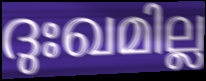
ദുഃഖമില്ല